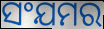
ସଂଯମର